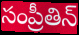
సంప్రీతిన్